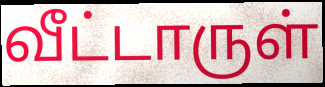
வீட்டாருள்